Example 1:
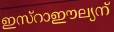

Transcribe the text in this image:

ഇസ്റാഈല്യന്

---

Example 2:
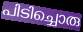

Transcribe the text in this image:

പിടിച്ചൊരു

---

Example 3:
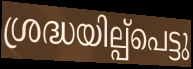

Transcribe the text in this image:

ശ്രദ്ധയില്പ്പെട്ടു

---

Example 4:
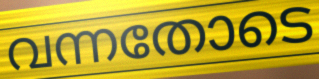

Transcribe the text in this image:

വന്നതോടെ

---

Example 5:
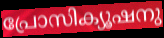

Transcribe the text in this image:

പ്രോസിക്യൂഷനു